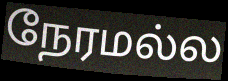
நேரமல்ல